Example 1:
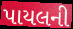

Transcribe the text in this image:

પાયલની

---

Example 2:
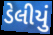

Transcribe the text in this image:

ડેલીયું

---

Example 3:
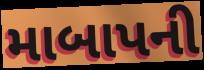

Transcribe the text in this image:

માબાપની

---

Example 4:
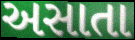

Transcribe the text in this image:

અસાતા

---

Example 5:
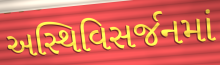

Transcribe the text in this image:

અસ્થિવિસર્જનમાં